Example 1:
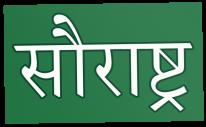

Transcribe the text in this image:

सौराष्ट्र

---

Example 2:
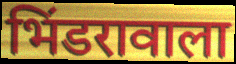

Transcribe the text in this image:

भिंडरावाला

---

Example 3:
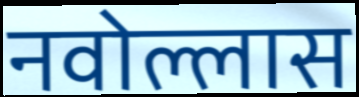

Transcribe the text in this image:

नवोल्लास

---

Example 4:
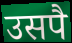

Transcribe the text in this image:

उसपै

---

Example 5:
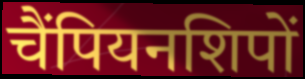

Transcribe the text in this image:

चैंपियनशिपों